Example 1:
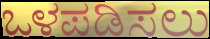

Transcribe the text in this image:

ಒಳಪಡಿಸಲು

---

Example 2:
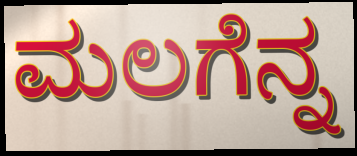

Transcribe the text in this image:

ಮಲಗೆನ್ನ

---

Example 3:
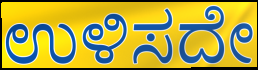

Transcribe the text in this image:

ಉಳಿಸದೇ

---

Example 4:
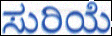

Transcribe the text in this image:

ಸುರಿಯೆ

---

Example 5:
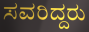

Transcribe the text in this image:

ಸವರಿದ್ದರು